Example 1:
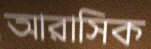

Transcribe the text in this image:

আৱাসিক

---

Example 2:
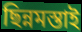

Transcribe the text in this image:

ছিন্নমস্তাই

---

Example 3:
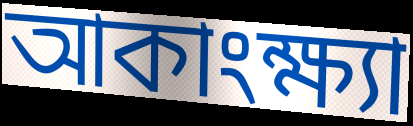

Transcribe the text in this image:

আকাংক্ষ্যা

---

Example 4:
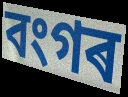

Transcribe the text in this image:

বংগৰ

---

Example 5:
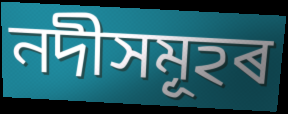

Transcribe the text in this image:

নদীসমূহৰ